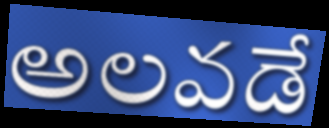
అలవడే